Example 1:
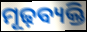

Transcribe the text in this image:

ମୂଢ଼ବ୍ୟକ୍ତି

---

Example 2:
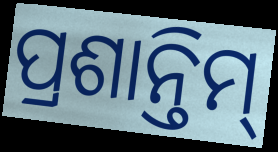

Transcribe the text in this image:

ପ୍ରଶାନ୍ତିମ୍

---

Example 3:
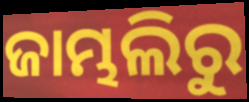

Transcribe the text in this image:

ଜାମ୍ଭଲିରୁ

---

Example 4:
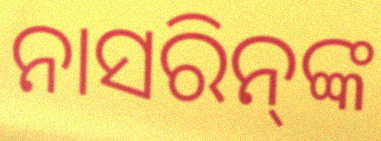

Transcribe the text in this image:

ନାସରିନ୍‌ଙ୍କ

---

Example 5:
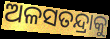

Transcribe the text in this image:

ଅଳସତନ୍ଦ୍ରାକୁ